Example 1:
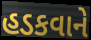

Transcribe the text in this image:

હડકવાને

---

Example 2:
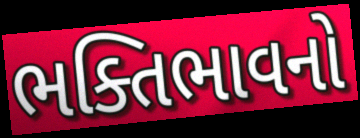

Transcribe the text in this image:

ભક્તિભાવનો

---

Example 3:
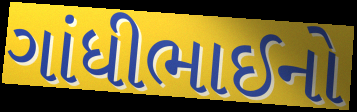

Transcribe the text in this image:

ગાંધીભાઈનો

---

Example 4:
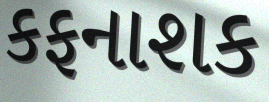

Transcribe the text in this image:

કફનાશક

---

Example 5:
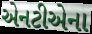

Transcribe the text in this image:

એનટીએના